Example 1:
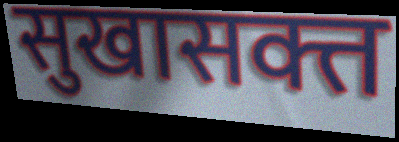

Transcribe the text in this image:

सुखासक्त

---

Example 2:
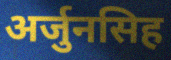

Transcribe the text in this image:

अर्जुनसिह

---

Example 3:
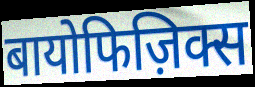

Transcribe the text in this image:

बायोफिज़िक्स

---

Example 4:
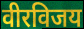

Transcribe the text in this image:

वीरविजय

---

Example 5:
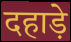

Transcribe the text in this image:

दहाड़े